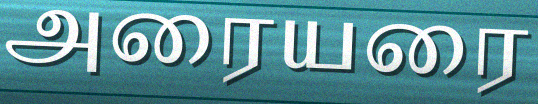
அரையரை